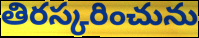
తిరస్కరించును